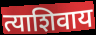
त्याशिवाय